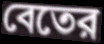
বেতের